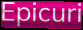
Epicuri